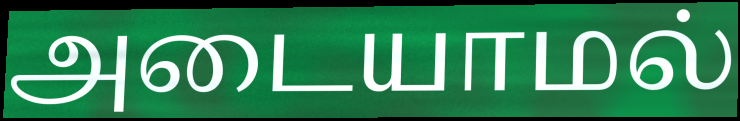
அடையாமல்